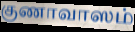
குணாவாஸம்